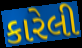
કારેલી